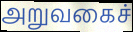
அறுவகைச்